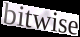
bitwise